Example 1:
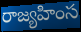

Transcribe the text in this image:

రాజ్యహింస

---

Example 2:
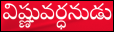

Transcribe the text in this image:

విష్ణువర్ధనుడు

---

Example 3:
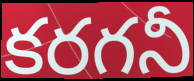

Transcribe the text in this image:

కరగనీ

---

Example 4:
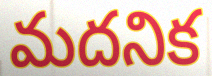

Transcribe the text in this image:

మదనిక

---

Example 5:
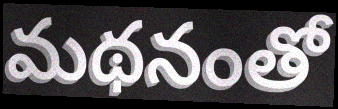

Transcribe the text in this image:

మథనంతో